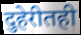
दुहेरीतही